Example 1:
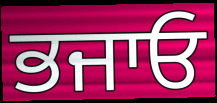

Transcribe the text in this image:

ਭਜਾਓ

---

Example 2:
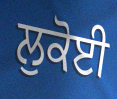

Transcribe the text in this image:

ਲੁਕੋਈ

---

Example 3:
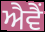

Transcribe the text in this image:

ਐਵੈਂ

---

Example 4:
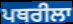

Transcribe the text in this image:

ਪਥਰੀਲਾ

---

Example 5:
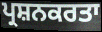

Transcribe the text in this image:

ਪ੍ਰਸ਼ਨਕਰਤਾ